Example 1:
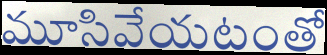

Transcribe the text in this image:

మూసివేయటంతో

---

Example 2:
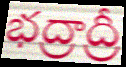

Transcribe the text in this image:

భద్రాద్రీ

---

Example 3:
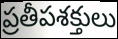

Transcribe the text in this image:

ప్రతీపశక్తులు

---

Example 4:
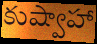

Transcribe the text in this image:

కుష్వాహా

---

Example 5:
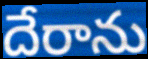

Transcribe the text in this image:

దేరాను